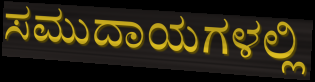
ಸಮುದಾಯಗಳಲ್ಲಿ